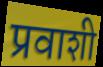
प्रवाशी